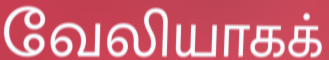
வேலியாகக்